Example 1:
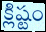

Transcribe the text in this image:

క్లిష్టం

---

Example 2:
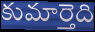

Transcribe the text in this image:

కుమార్తెది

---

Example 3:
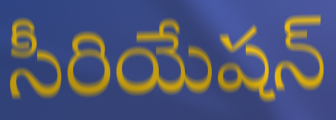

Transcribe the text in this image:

సీరియేషన్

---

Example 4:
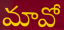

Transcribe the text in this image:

మావో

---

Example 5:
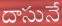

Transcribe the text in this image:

దాసునే